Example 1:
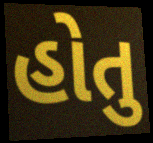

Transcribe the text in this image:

હોતુ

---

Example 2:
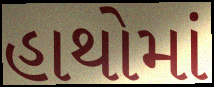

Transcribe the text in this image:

હાથોમાં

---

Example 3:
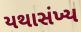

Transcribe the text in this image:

યથાસંખ્ય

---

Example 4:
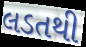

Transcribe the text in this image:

લડતથી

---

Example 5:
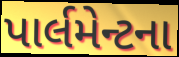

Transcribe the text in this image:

પાર્લમેન્ટના